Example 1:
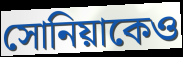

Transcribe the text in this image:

সোনিয়াকেও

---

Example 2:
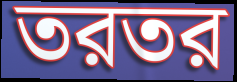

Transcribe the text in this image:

তরতর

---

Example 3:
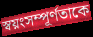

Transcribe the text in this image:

স্বয়ংসম্পূর্ণতাকে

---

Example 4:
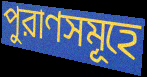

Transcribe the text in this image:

পুরাণসমূহে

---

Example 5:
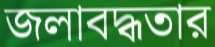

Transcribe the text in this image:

জলাবদ্ধতার